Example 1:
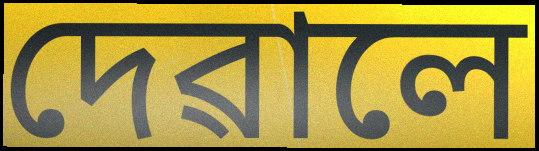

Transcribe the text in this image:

দেৱালে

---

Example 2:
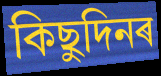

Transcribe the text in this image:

কিছুদিনৰ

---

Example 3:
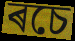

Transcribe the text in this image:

ৰচে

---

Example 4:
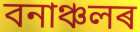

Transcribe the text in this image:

বনাঞ্চলৰ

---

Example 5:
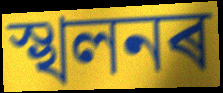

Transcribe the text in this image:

স্খলনৰ